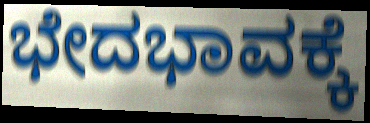
ಭೇದಭಾವಕ್ಕೆ